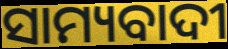
ସାମ୍ୟବାଦୀ